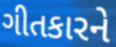
ગીતકારને